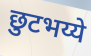
छुटभय्ये